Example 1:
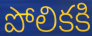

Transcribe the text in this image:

పోలికకి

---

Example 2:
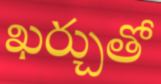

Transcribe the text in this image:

ఖర్చుతో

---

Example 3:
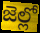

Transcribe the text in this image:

జెల్లో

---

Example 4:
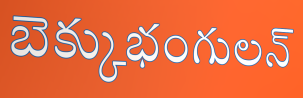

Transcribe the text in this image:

బెక్కుభంగులన్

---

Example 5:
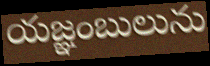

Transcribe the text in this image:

యజ్ఞంబులును